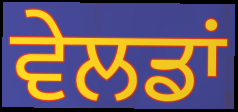
ਵੇਲਡਾਂ